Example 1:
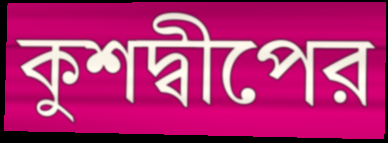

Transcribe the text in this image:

কুশদ্বীপের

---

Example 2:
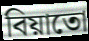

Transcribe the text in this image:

বিয়াতো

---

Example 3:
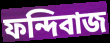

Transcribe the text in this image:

ফন্দিবাজ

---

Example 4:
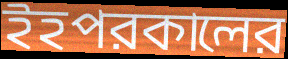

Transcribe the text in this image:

ইহপরকালের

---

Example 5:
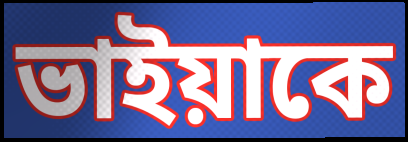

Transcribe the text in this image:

ভাইয়াকে